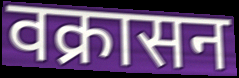
वक्रासन